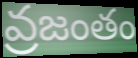
వ్రజంతం